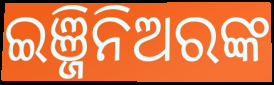
ଇଞ୍ଜିନିଅରଙ୍କ